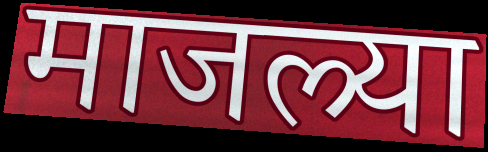
माजल्या